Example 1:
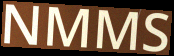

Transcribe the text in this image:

NMMS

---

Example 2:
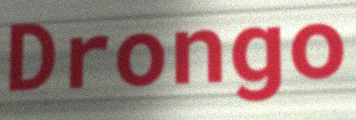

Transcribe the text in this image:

Drongo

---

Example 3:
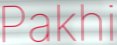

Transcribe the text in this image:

Pakhi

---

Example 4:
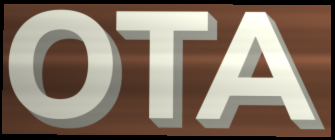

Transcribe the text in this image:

OTA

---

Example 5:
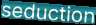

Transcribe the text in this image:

seduction